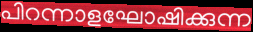
പിറന്നാളഘോഷിക്കുന്ന